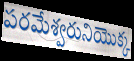
పరమేశ్వరునియొక్క